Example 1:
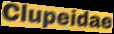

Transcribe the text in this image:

Clupeidae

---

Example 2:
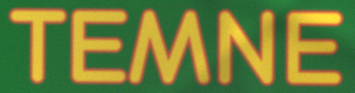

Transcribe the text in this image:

TEMNE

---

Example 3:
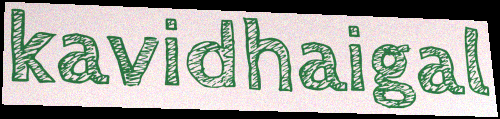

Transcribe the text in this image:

kavidhaigal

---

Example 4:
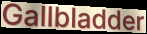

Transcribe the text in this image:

Gallbladder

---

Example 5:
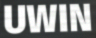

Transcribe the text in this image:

UWIN